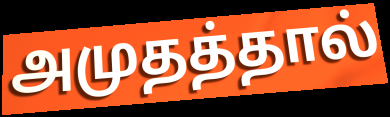
அமுதத்தால்